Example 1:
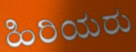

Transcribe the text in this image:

ಹಿರಿಯರು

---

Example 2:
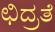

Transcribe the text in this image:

ಛಿದ್ರತೆ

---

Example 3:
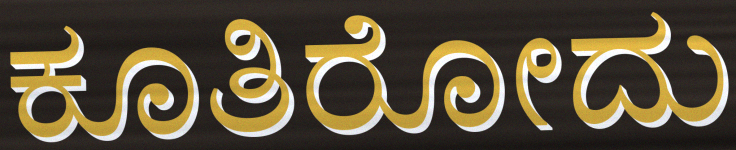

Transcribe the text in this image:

ಕೂತಿರೋದು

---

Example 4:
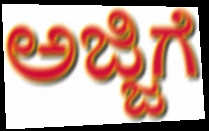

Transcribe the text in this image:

ಅಜ್ಜಿಗೆ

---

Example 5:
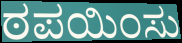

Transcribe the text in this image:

ಠಪಯಿಂಸು